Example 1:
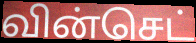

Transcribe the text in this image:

வின்செட்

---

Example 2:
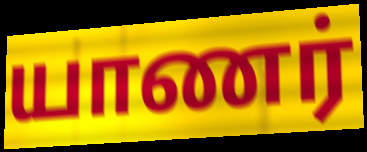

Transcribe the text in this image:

யாணர்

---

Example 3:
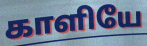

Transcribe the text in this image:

காளியே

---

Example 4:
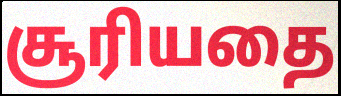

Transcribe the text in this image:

சூரியதை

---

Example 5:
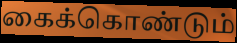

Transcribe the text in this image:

கைக்கொண்டும்